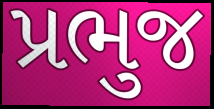
પ્રભુજ